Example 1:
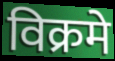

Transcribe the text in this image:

विक्रमे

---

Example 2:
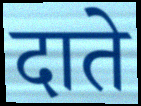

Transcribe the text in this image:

दाते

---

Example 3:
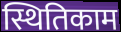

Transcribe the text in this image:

स्थितिकाम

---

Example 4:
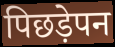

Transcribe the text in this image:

पिछड़ेपन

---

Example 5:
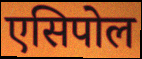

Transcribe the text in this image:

एसिपोल